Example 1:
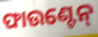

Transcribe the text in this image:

ଫାଉଣ୍ଟେନ୍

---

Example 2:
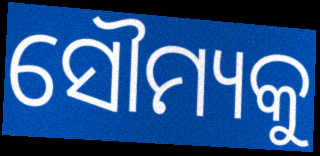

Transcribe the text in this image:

ସୌମ୍ୟକୁ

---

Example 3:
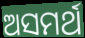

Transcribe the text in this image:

ଅସମର୍ଥ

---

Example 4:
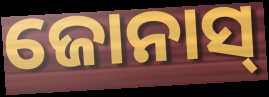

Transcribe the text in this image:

ଜୋନାସ୍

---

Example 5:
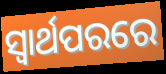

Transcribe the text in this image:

ସ୍ୱାର୍ଥପରରେ